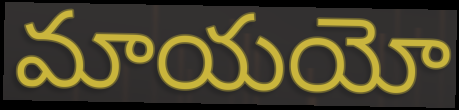
మాయయో